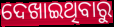
ଦେଖାଇଥିବାରୁ